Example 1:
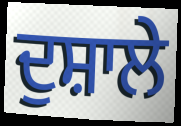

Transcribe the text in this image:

ਦੁਸ਼ਾਲੇ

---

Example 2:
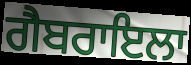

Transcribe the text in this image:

ਗੈਬਰਾਇਲਾ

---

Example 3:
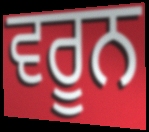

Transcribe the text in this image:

ਵਰੂਨ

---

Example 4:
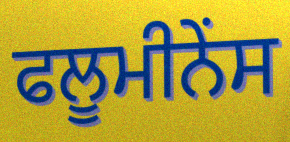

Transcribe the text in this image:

ਫਲੂਮੀਨੇਂਸ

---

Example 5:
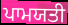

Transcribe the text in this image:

ਪਾਮਯਤੀ